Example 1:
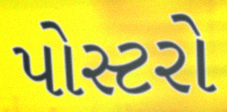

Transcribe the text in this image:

પોસ્ટરો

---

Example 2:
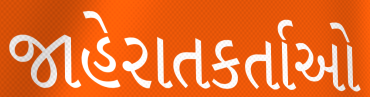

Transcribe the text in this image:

જાહેરાતકર્તાઓ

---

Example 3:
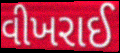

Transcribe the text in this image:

વીખરાઈ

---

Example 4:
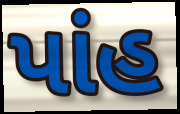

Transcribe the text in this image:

પાંહ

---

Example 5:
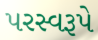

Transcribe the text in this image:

પરસ્વરૂપે